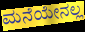
ಮನೆಯೇನಲ್ಲ